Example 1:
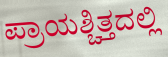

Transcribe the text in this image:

ಪ್ರಾಯಶ್ಚಿತ್ತದಲ್ಲಿ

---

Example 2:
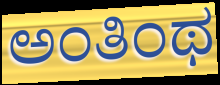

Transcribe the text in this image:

ಅಂತಿಂಥ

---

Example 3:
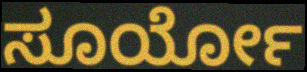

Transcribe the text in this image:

ಸೂರ್ಯೋ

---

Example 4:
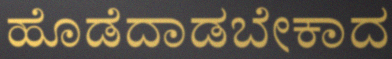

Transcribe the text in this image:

ಹೊಡೆದಾಡಬೇಕಾದ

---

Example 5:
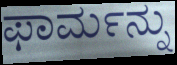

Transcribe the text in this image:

ಫಾರ್ಮನ್ನು